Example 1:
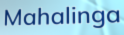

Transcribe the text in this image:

Mahalinga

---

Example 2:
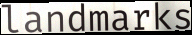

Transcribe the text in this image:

landmarks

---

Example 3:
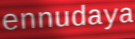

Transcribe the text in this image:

ennudaya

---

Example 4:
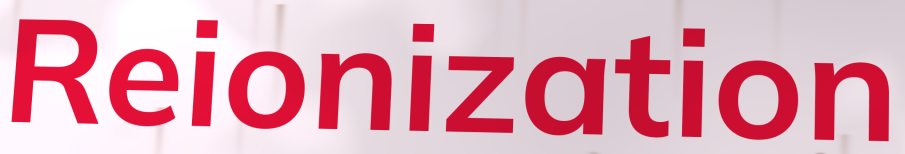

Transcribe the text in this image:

Reionization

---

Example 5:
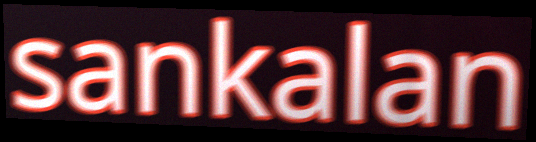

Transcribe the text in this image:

sankalan